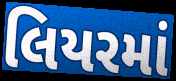
લિયરમાં